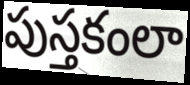
పుస్తకంలా